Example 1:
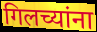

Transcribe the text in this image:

गिलच्यांना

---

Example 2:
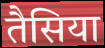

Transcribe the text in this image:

तैसिया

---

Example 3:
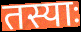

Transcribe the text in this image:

तस्याः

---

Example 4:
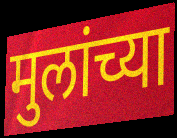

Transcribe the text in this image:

मुलांच्या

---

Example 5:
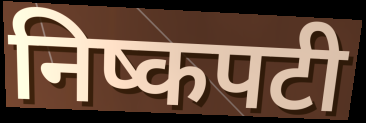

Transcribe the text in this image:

निष्कपटी